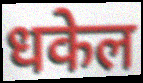
धकेल